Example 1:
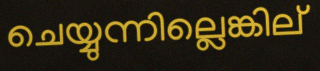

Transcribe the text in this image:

ചെയ്യുന്നില്ലെങ്കില്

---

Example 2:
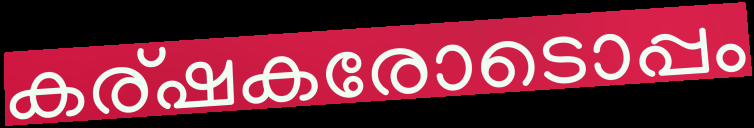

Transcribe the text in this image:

കര്ഷകരോടൊപ്പം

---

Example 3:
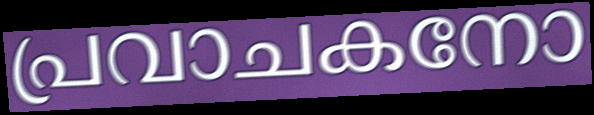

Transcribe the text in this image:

പ്രവാചകനോ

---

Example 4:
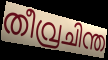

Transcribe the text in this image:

തീവ്രചിന്ത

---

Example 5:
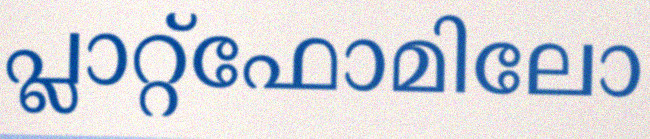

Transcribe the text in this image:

പ്ലാറ്റ്ഫോമിലോ